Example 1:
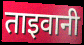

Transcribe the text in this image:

ताइवानी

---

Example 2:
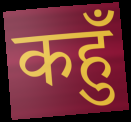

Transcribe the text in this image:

कहुँ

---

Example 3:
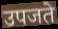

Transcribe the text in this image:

उपजते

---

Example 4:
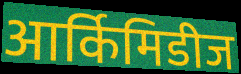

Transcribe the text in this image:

आर्किमिडीज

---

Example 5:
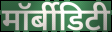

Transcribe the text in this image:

मॉर्बीडिटी